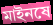
মাইনষে